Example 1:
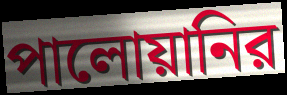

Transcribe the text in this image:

পালোয়ানির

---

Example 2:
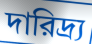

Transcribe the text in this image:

দারিদ্র্য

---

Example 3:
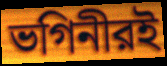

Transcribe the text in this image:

ভগিনীরই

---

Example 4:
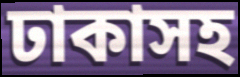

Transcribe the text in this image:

ঢাকাসহ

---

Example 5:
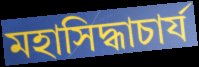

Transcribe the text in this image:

মহাসিদ্ধাচার্য